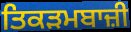
ਤਿਕੜਮਬਾਜ਼ੀ